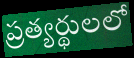
ప్రత్యర్థులలో